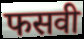
फसवी